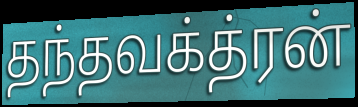
தந்தவக்த்ரன்